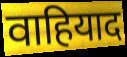
वाहियाद